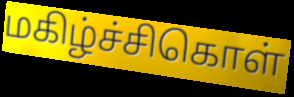
மகிழ்ச்சிகொள்